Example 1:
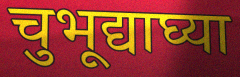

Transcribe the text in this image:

चुभूद्याघ्या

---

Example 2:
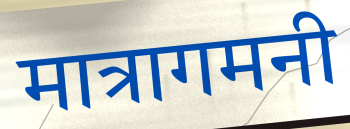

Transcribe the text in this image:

मात्रागमनी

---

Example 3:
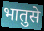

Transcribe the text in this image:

भातुसे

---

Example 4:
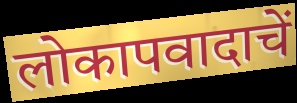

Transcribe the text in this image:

लोकापवादाचें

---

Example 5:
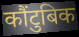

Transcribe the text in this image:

कौंटुबिक